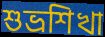
শুভ্রশিখা